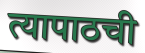
त्यापाठची